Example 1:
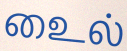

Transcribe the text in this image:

உைல்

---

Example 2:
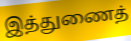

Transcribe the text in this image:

இத்துணைத்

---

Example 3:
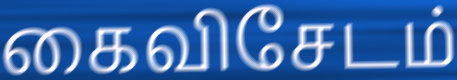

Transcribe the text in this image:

கைவிசேடம்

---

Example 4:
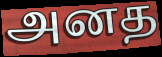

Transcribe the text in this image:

அனத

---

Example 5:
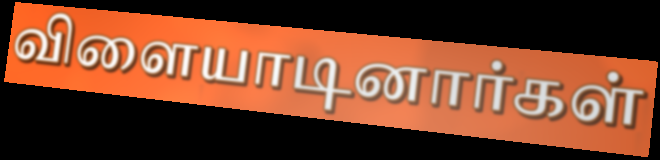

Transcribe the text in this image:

விளையாடினார்கள்